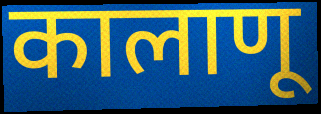
कालाणू